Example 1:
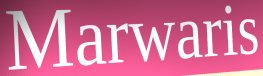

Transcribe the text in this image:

Marwaris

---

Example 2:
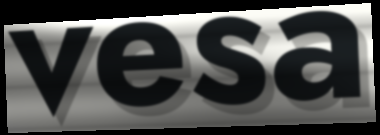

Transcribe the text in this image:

vesa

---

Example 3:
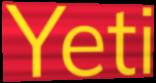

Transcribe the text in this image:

Yeti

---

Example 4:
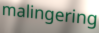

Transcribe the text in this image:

malingering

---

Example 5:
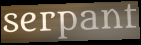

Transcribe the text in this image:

serpant